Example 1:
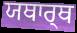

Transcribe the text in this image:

ਯਥਾਰ੍ਥ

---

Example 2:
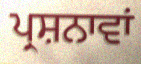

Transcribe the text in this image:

ਪ੍ਰਸ਼ਨਾਵਾਂ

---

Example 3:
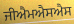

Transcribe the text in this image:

ਜੀਐਮਐਸਐਸ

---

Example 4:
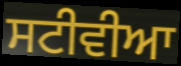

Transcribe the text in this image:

ਸਟੀਵੀਆ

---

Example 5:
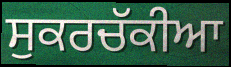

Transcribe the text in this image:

ਸੁਕਰਚੱਕੀਆ